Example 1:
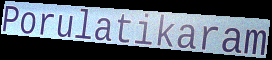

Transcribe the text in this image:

Porulatikaram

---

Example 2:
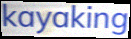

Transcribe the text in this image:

kayaking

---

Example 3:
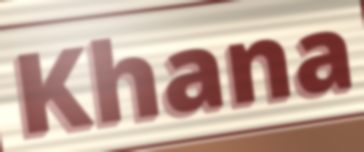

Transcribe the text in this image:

Khana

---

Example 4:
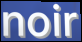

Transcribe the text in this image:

noir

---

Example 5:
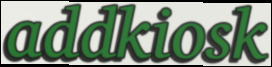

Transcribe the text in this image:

addkiosk